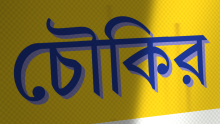
চৌকির